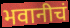
भवानीचं